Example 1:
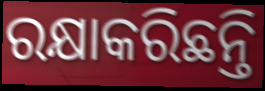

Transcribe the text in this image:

ରକ୍ଷାକରିଛନ୍ତି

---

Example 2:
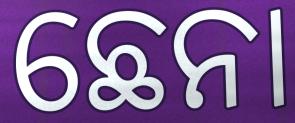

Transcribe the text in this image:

ଛେନା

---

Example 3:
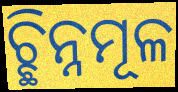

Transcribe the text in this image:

ଚ୍ଛିନ୍ନମୂଳ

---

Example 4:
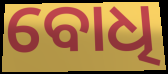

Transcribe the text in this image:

ବୋଧି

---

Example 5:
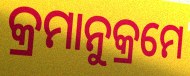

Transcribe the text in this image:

କ୍ରମାନୁକ୍ରମେ